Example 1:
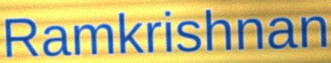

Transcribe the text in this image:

Ramkrishnan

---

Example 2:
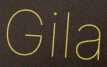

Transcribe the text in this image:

Gila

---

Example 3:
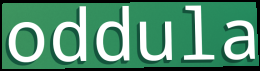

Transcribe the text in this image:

oddula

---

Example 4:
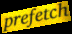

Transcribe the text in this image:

prefetch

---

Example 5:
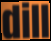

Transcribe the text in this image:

dill